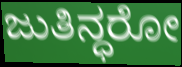
ಜುತಿನ್ಧರೋ